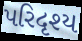
પરિદૃશ્ય